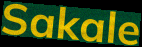
Sakale